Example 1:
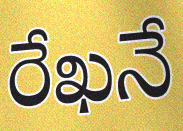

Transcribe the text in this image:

రేఖనే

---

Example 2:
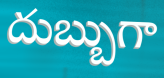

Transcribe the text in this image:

దుబ్బుగా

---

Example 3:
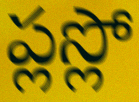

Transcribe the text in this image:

ప్లస్లో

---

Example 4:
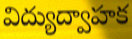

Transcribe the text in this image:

విద్యుద్వాహక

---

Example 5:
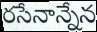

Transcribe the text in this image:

రసేనాన్నేన